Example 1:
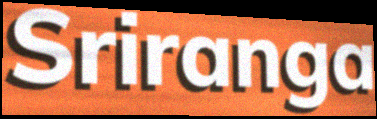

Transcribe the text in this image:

Sriranga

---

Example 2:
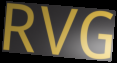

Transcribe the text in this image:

RVG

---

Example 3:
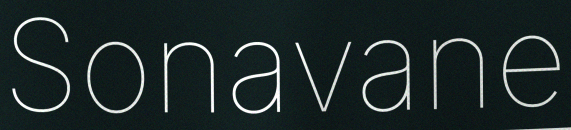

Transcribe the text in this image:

Sonavane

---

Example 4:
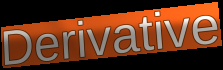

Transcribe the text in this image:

Derivative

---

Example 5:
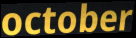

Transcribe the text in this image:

october